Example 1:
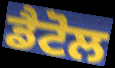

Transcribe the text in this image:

ਡੈਟੋਲ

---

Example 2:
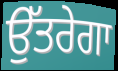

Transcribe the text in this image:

ਉੱਤਰੇਗਾ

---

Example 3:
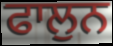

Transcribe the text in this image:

ਫਾਲੁਨ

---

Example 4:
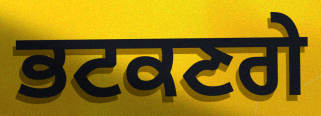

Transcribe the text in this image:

ਭਟਕਣਗੇ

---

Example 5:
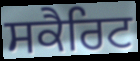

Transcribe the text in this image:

ਸਕੈਰਿਟ